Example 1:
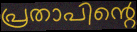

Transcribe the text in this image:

പ്രതാപിന്റെ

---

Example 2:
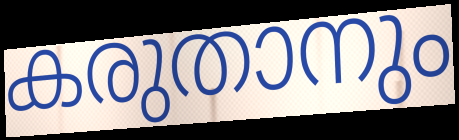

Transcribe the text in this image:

കരുതാനും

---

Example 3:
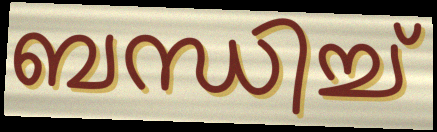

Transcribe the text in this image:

ബന്ധിച്ച്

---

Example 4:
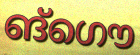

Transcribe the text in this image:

ങ്ഗൌ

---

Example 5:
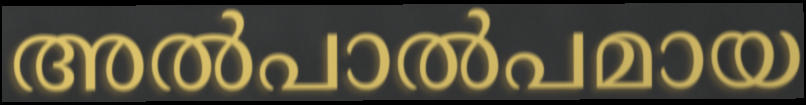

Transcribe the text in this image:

അൽപാൽപമായ